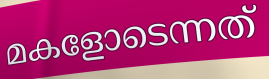
മകളോടെന്നത്